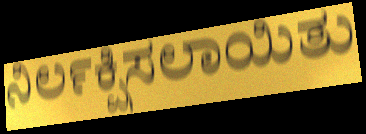
ನಿರ್ಲಕ್ಷಿಸಲಾಯಿತು